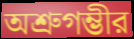
অশ্রুগম্ভীর